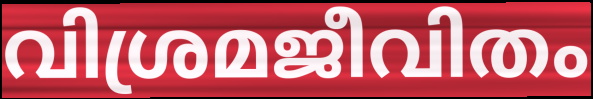
വിശ്രമജീവിതം